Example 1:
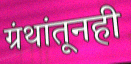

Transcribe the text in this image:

ग्रंथांतूनही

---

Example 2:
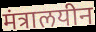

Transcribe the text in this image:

मंत्रालयीन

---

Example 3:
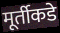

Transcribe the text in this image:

मूर्तीकडे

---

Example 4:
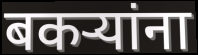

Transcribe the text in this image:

बकर्‍यांना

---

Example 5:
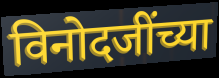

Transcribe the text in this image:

विनोदजींच्या